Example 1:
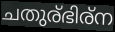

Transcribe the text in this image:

ചതുര്ഭിര്ന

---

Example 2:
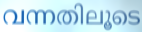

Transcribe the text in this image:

വന്നതിലൂടെ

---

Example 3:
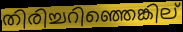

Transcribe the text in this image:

തിരിച്ചറിഞ്ഞെങ്കില്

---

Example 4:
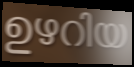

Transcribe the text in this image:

ഉഴറിയ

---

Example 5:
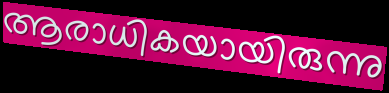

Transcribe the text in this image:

ആരാധികയായിരുന്നു